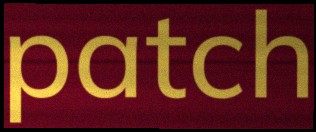
patch